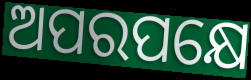
ଅପରପକ୍ଷେ